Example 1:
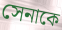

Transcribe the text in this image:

সেনাকে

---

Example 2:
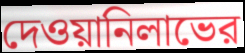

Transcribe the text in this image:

দেওয়ানিলাভের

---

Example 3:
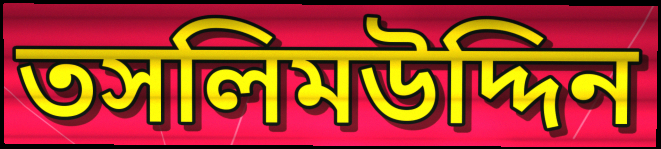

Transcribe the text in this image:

তসলিমউদ্দিন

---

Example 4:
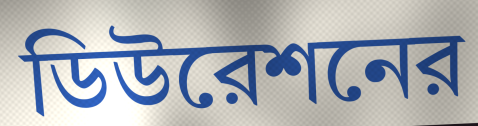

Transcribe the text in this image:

ডিউরেশনের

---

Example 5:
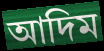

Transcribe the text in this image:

আদিম